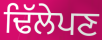
ਢਿੱਲੇਪਣ